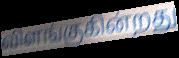
விளங்குகின்றது